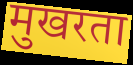
मुखरता